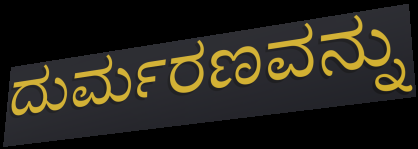
ದುರ್ಮರಣವನ್ನು